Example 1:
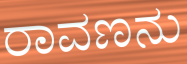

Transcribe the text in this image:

ರಾವಣನು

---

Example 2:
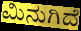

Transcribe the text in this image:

ಮಿನುಗಿದೆ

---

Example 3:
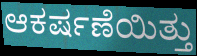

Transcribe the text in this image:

ಆಕರ್ಷಣೆಯಿತ್ತು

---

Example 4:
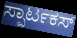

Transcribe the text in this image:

ಸ್ಪಾರ್ಟಕಸ್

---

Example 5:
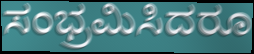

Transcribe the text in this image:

ಸಂಭ್ರಮಿಸಿದರೂ